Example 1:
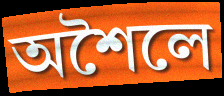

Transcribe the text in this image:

অশৈলে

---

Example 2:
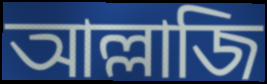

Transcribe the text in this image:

আল্লাজি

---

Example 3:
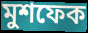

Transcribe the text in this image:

মুশফেক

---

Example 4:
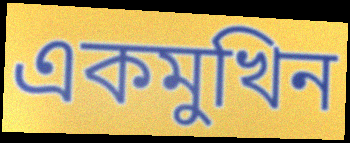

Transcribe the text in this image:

একমুখিন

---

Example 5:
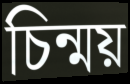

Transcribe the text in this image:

চিন্ময়